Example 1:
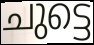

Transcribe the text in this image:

ചുട്ടെ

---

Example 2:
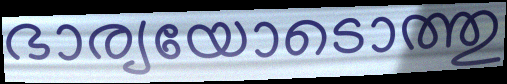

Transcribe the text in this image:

ഭാര്യയോടൊത്തു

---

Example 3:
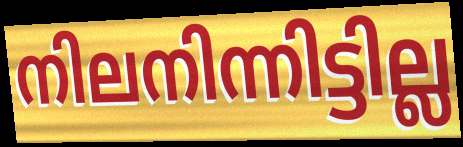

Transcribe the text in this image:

നിലനിന്നിട്ടില്ല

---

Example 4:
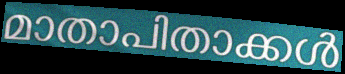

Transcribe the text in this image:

മാതാപിതാക്കൾ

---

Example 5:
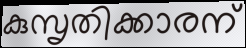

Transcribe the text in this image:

കുസൃതിക്കാരന്